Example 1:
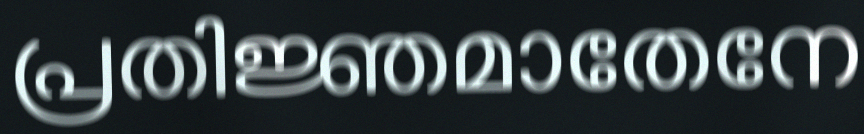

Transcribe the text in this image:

പ്രതിജ്ഞമാതേനേ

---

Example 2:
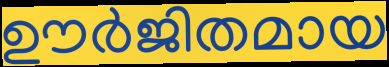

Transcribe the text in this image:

ഊർജിതമായ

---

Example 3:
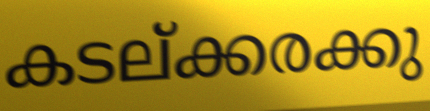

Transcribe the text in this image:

കടല്ക്കരക്കു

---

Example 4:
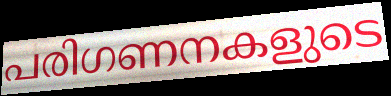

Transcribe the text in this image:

പരിഗണനകളുടെ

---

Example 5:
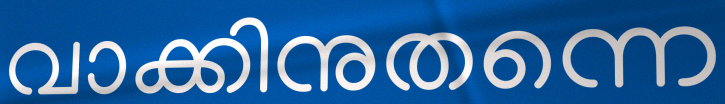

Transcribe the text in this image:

വാക്കിനുതന്നെ